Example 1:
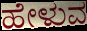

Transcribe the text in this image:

ಹೇಳುವ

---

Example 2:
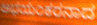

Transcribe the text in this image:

ಅಭಯಂಕರನಾದ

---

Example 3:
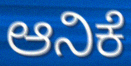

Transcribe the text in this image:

ಆನಿಕೆ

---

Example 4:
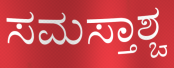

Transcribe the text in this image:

ಸಮಸ್ತಾಶ್ಚ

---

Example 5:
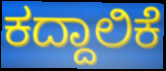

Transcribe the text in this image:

ಕದ್ದಾಲಿಕೆ